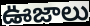
ఊజాలు